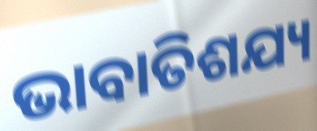
ଭାବାତିଶଯ୍ୟ